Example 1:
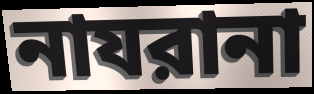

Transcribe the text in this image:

নাযরানা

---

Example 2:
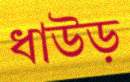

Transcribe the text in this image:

ধাউড়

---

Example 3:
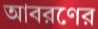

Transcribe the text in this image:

আবরণের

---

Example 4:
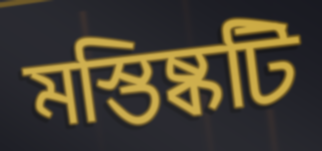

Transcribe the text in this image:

মস্তিষ্কটি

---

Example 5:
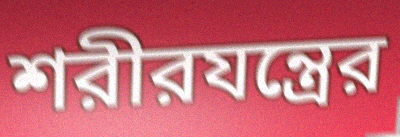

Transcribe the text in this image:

শরীরযন্ত্রের